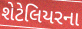
શેટેલિયરના